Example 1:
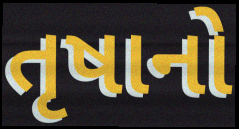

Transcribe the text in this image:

તૃષાનો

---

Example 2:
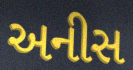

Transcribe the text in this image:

અનીસ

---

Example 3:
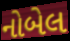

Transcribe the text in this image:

નોબેલ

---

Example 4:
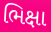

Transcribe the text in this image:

ભિક્ષા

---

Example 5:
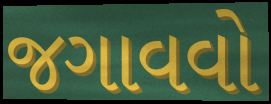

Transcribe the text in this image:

જગાવવો